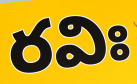
రవిః